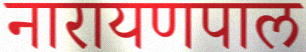
नारायणपाल